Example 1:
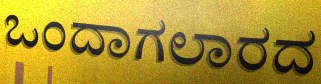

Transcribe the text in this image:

ಒಂದಾಗಲಾರದ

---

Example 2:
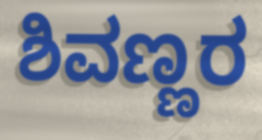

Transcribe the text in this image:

ಶಿವಣ್ಣರ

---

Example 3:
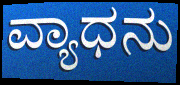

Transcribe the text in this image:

ವ್ಯಾಧನು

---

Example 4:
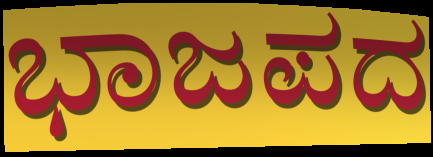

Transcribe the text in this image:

ಭಾಜಪದ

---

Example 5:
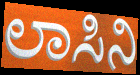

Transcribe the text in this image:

ಲಾಸಿನಿ